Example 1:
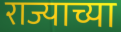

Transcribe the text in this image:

राज्याच्या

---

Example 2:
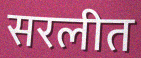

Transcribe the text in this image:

सरलीत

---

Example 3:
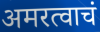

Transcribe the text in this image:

अमरत्वाचं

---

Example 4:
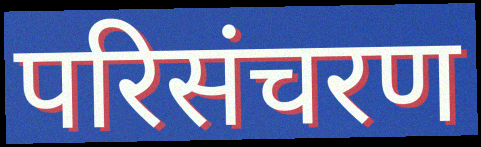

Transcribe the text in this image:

परिसंचरण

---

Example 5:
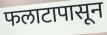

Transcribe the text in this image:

फलाटापासून